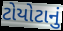
ટોયોટાનું